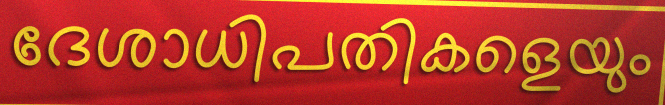
ദേശാധിപതികളെയും